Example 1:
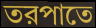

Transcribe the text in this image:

তরপাতে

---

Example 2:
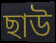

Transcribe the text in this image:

ছাউ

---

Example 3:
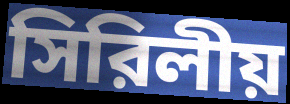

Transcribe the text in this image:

সিরিলীয়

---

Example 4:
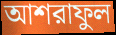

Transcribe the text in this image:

আশরাফুল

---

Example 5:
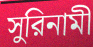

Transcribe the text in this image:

সুরিনামী